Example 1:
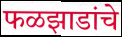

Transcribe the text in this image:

फळझाडांचे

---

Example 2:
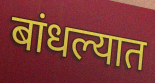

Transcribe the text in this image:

बांधल्यात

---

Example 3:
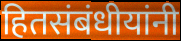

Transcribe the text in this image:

हितसंबंधीयांनी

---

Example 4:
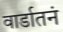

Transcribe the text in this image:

वार्डातनं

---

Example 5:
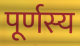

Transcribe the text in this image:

पूर्णस्य